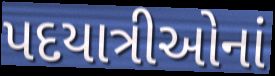
પદયાત્રીઓનાં